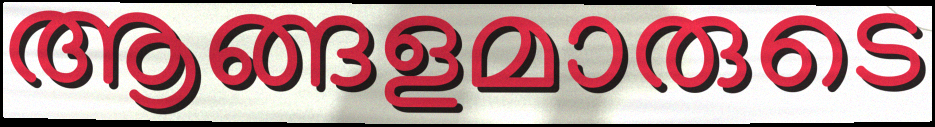
ആങ്ങളമാരുടെ